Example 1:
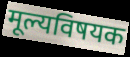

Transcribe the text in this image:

मूल्यविषयक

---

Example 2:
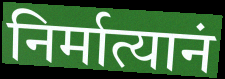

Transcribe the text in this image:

निर्मात्यानं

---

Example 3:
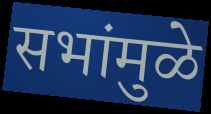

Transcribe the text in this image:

सभांमुळे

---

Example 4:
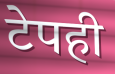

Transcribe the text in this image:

टेपही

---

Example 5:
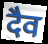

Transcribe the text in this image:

दैव